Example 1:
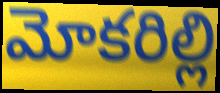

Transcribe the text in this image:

మోకరిల్లి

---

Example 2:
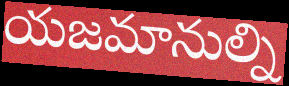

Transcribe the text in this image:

యజమానుల్ని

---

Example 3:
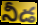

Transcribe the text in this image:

నీడ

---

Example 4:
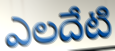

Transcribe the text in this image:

ఎలదేటి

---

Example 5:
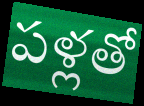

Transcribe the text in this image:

పళ్లతో